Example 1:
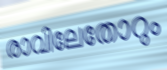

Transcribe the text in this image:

രാവിലേതോറും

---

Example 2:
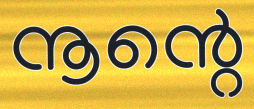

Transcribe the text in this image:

നൂന്റെ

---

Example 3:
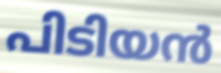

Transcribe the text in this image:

പിടിയൻ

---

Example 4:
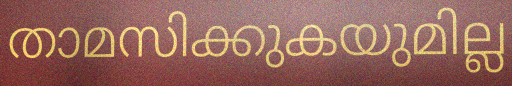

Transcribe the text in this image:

താമസിക്കുകയുമില്ല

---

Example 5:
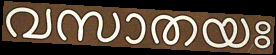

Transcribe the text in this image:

വസാതയഃ